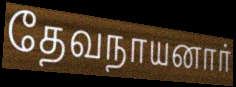
தேவநாயனார்